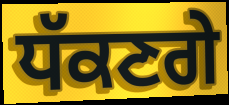
ਧੱਕਣਗੇ